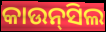
କାଉନ୍‍ସିଲ